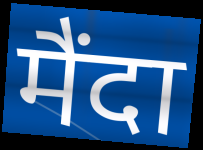
मैंदा